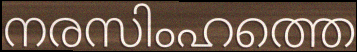
നരസിംഹത്തെ